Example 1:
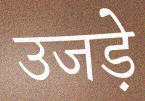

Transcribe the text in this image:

उजड़े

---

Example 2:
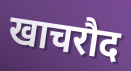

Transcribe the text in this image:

खाचरौद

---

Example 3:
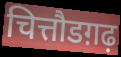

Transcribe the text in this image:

चित्तौडग़ढ़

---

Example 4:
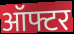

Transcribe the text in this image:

ऑफ्टर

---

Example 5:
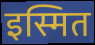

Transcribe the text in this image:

इस्मित